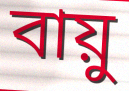
বায়ু